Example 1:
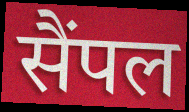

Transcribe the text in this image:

सैंपल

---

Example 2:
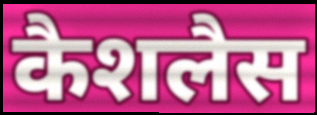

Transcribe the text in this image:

कैशलैस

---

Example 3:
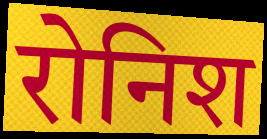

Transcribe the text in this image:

रोनिश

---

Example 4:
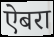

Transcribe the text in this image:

ऐबरा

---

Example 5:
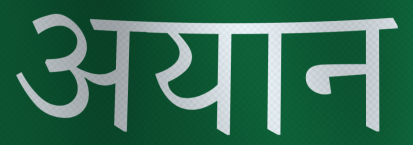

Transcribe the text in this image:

अयान